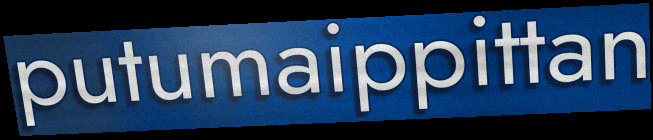
putumaippittan